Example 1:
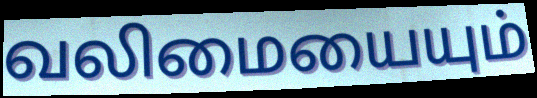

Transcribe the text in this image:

வலிமையையும்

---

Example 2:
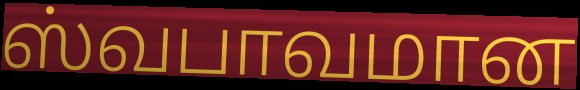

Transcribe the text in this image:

ஸ்வபாவமான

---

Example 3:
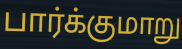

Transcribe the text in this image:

பார்க்குமாறு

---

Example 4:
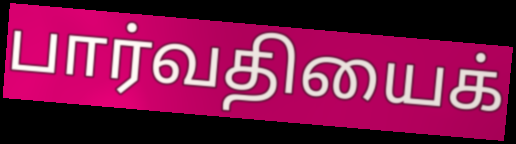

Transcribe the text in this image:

பார்வதியைக்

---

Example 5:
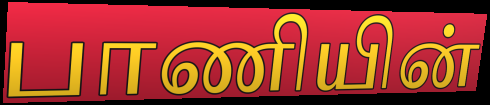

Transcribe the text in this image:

பாணியின்